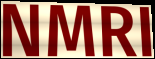
NMRI